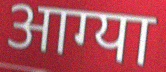
आग्या